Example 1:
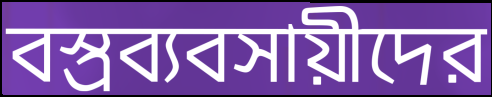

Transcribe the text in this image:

বস্ত্রব্যবসায়ীদের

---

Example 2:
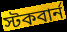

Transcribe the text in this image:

স্টকবার্ন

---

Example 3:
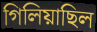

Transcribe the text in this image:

গিলিয়াছিল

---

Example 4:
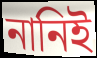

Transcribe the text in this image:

নানিই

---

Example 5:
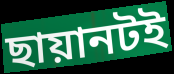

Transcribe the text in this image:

ছায়ানটই